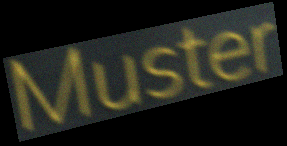
Muster